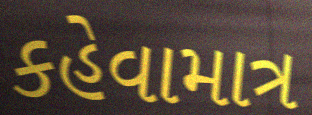
કહેવામાત્ર